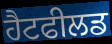
ਹੈਟਫੀਲਡ